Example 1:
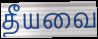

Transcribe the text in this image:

தீயவை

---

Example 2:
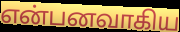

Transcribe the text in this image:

என்பனவாகிய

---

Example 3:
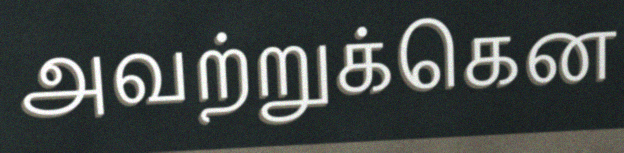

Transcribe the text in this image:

அவற்றுக்கென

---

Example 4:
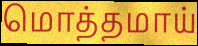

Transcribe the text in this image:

மொத்தமாய்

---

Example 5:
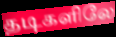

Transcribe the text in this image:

தடிகளிலே